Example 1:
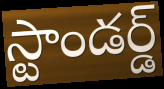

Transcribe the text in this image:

స్టాండర్డ్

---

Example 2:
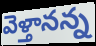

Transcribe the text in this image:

వెళ్తానన్న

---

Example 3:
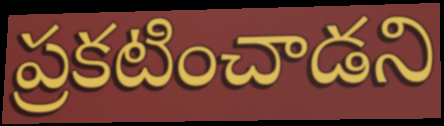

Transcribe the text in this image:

ప్రకటించాడని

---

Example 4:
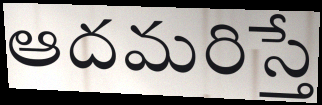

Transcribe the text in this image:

ఆదమరిస్తే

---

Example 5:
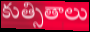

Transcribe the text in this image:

కుత్సితాలు